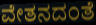
ವೇತನದಂತೆ